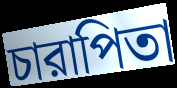
চারাপিতা